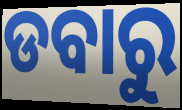
ଡବାରୁ